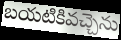
బయటికివచ్చెను